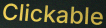
Clickable